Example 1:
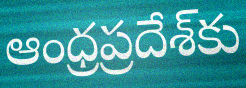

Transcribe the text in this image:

ఆంధ్రప్రదేశ్‌కు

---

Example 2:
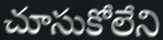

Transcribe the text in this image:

చూసుకోలేని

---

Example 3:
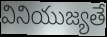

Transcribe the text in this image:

వినియుజ్యతే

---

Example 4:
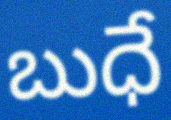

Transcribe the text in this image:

బుధే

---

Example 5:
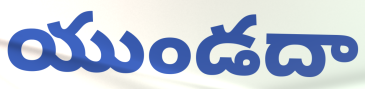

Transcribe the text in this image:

యుండదా